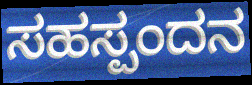
ಸಹಸ್ಪಂದನ